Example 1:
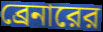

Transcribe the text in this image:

ব্রেনারের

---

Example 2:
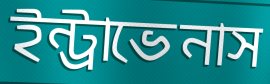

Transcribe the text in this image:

ইন্ট্রাভেনাস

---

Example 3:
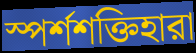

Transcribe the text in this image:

স্পর্শশক্তিহারা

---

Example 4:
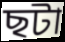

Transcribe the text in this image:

ছটা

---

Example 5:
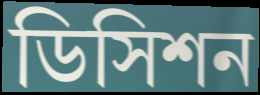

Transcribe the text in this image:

ডিসিশন